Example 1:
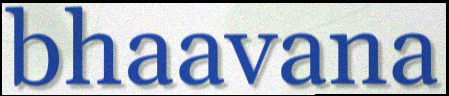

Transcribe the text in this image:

bhaavana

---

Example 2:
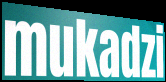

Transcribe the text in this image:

mukadzi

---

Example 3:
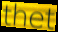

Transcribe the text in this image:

thet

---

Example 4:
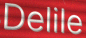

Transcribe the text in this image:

Delile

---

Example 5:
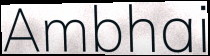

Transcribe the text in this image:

Ambhai